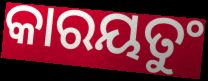
କାରୟତୁଂ